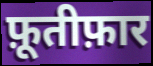
फ़ूतीफ़ार